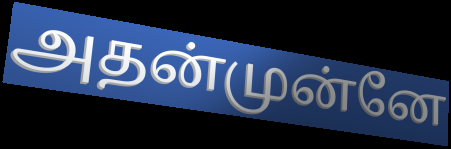
அதன்முன்னே